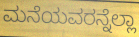
ಮನೆಯವರನ್ನೆಲ್ಲಾ